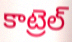
కాట్రెల్